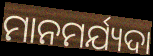
ମାନମର୍ଯ୍ୟଦା